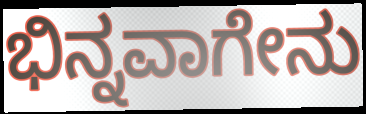
ಭಿನ್ನವಾಗೇನು